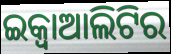
ଇକ୍ୱାଆଲିଟିର